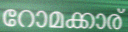
റോമക്കാര്